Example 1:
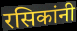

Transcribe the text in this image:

रसिकांनी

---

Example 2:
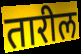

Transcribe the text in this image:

तारील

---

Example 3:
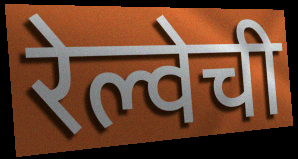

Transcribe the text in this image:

रेल्वेची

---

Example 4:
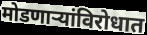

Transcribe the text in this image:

मोडणाऱ्यांविरोधात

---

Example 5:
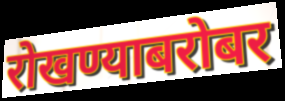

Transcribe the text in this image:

रोखण्याबरोबर